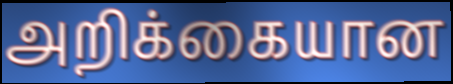
அறிக்கையான